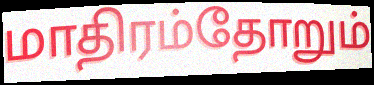
மாதிரம்தோறும்